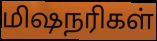
மிஷநரிகள்